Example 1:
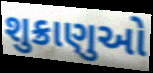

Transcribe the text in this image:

શુક્રાણુઓ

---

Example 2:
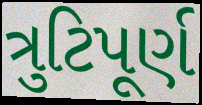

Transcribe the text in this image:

ત્રુટિપૂર્ણ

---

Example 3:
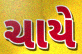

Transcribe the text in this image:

ચાયે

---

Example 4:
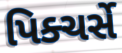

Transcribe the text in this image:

પિક્ચર્સે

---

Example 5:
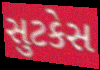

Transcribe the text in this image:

સુટકેસ